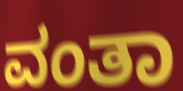
ವಂತಾ